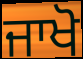
ਜਾਖੋ